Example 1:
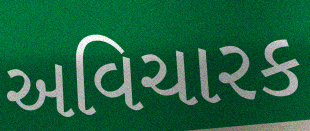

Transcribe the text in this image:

અવિચારક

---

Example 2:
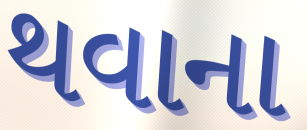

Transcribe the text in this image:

થવાના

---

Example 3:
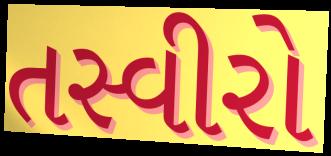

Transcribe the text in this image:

તસ્વીરો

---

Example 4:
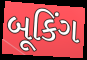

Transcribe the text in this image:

બૂકિંગ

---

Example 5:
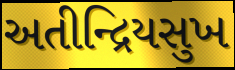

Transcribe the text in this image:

અતીન્દ્રિયસુખ